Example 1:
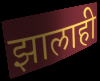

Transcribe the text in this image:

झालाही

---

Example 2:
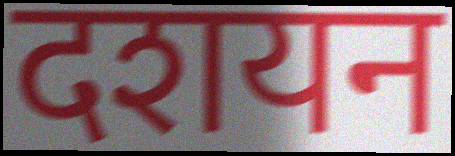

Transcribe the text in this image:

दशयन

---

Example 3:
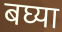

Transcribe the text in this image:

बघ्या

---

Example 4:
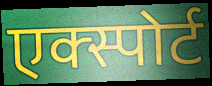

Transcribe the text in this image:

एक्‍स्पोर्ट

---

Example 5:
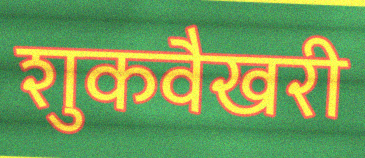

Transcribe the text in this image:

शुकवैखरी